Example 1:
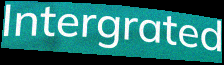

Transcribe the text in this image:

Intergrated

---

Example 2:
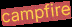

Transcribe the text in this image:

campfire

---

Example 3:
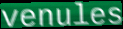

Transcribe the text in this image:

venules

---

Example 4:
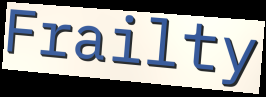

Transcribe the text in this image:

Frailty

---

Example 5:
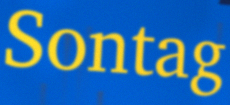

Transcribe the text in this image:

Sontag